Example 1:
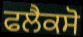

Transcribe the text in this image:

ਫਲੈਕਸੋ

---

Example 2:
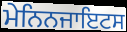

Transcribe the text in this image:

ਮੇਨਿਨਜਾਇਟਸ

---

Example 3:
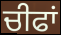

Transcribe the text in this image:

ਚੀਫਾਂ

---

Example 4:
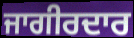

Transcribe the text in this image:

ਜਾਗੀਰਦਾਰ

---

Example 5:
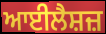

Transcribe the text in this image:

ਆਈਲੈਸ਼ਜ਼